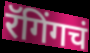
रॅगिंगचं